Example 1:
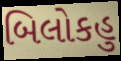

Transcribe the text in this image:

બિલોકહુ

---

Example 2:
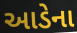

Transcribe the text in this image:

આડેના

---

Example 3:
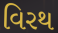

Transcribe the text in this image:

વિરથ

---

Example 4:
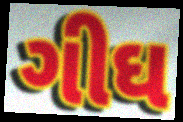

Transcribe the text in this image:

ગીઘ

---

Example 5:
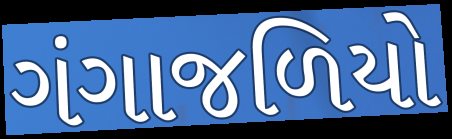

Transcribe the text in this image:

ગંગાજળિયો